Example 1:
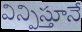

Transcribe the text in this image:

విన్పిస్తూనే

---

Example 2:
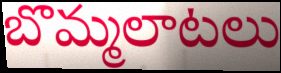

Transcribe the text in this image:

బొమ్మలాటలు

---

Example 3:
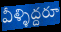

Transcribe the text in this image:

వీళ్ళిద్దరూ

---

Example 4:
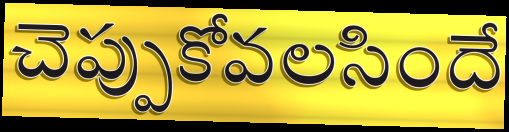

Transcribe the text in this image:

చెప్పుకోవలసిందే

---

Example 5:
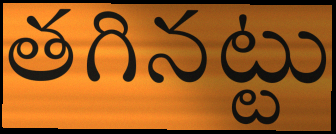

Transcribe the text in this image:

తగినట్టు